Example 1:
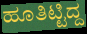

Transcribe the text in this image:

ಹೂತಿಟ್ಟಿದ್ದ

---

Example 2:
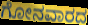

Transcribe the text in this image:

ಗೋನವಾರದ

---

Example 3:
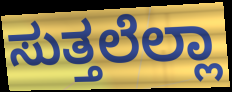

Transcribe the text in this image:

ಸುತ್ತಲೆಲ್ಲಾ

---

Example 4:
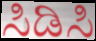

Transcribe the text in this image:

ಸಿಡಿಸಿ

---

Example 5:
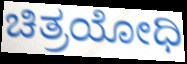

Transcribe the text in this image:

ಚಿತ್ರಯೋಧಿ